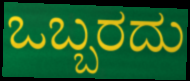
ಒಬ್ಬರದು